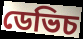
ডেভিচ